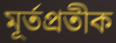
মূর্তপ্রতীক